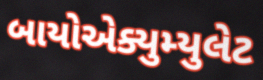
બાયોએક્યુમ્યુલેટ